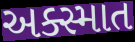
અક્સ્માત